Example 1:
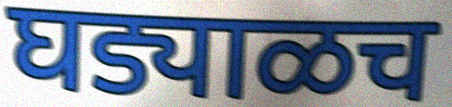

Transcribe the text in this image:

घड्याळच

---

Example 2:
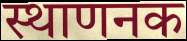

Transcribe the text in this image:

स्थाणनक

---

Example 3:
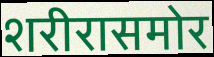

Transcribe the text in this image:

शरीरासमोर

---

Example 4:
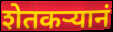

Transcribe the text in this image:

शेतकर्‍यानं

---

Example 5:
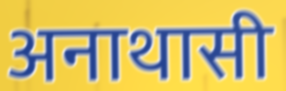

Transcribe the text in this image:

अनाथासी